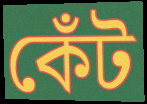
কেঁট